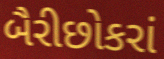
બૈરીછોકરાં